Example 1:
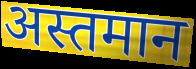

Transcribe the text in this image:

अस्तमान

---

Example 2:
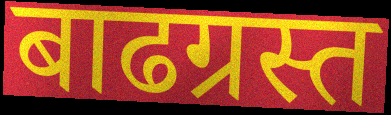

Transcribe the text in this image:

बाढग्रस्त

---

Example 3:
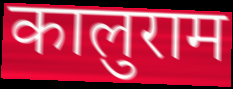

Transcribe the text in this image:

कालुराम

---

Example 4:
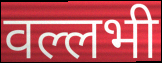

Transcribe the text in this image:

वल्लभी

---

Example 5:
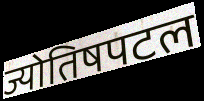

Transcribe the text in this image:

ज्योतिषपटल